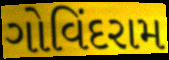
ગોવિંદરામ